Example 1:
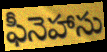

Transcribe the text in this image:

ఫీనెహాసు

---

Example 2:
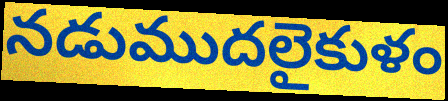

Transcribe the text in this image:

నడుముదలైకుళం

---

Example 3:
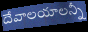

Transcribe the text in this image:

దేవాలయాలన్నీ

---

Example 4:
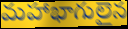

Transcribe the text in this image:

మహాభాగులైన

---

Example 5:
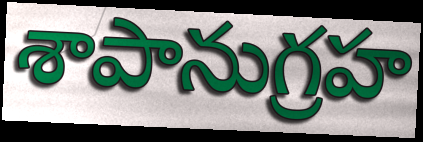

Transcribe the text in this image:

శాపానుగ్రహ